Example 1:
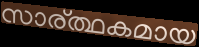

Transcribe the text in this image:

സാര്ത്ഥകമായ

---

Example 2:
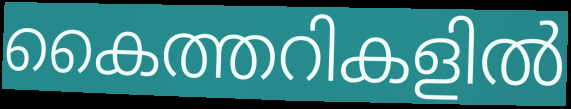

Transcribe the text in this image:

കൈത്തറികളിൽ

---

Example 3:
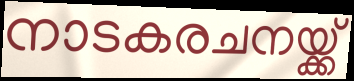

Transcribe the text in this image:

നാടകരചനയ്ക്ക്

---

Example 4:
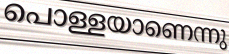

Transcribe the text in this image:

പൊള്ളയാണെന്നു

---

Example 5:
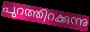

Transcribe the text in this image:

പുറത്തിറക്കുന്നു